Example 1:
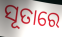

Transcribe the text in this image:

ସୂତାରେ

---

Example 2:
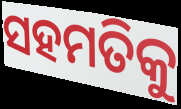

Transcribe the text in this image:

ସହମତିକୁ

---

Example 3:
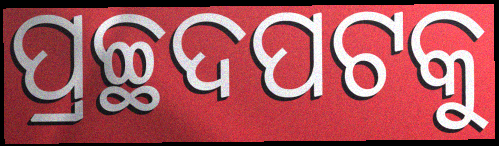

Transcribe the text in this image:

ପ୍ରଚ୍ଛଦପଟକୁ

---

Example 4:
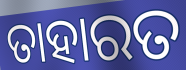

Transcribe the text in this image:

ତାହାରତ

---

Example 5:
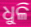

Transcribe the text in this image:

ଧୁଳି